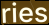
ries